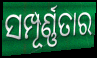
ସମ୍ପୂର୍ଣ୍ଣତାର